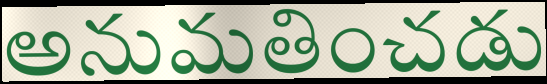
అనుమతించడు